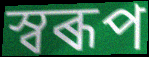
স্বৰূপ